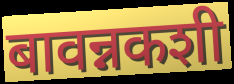
बावन्नकशी